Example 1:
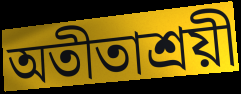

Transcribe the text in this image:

অতীতাশ্রয়ী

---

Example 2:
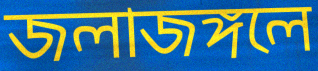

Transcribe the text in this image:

জলাজঙ্গলে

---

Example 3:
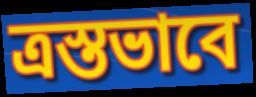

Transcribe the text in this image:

ত্রস্তভাবে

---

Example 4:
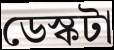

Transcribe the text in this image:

ডেস্কটা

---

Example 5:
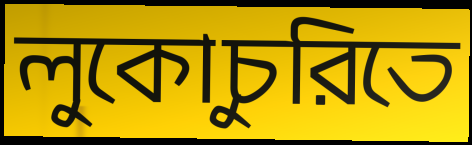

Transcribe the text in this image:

লুকোচুরিতে